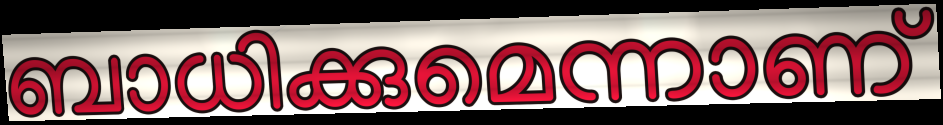
ബാധിക്കുമെന്നാണ്